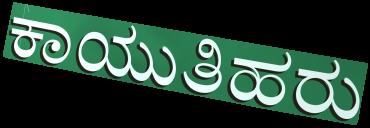
ಕಾಯುತಿಹರು